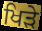
ਖਿੜੇ